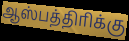
ஆஸ்பத்திரிக்கு